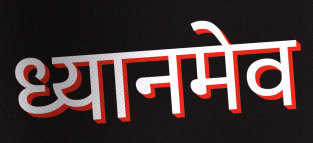
ध्यानमेव